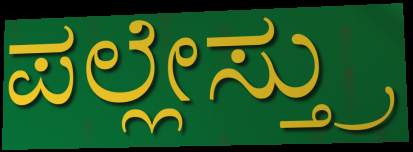
ಪಲ್ಲೇಸ್ತ್ರು